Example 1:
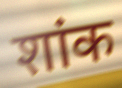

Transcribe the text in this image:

शांक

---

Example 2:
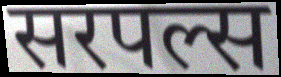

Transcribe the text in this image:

सरपल्स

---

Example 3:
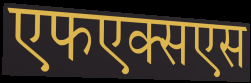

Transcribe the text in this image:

एफएक्सएस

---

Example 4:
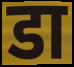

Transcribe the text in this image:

डा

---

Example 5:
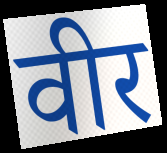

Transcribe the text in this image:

वीर